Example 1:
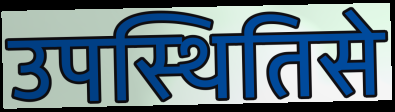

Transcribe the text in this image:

उपस्थितिसे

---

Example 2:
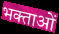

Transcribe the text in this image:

भक्ताओं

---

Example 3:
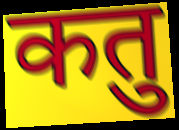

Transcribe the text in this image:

कतु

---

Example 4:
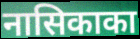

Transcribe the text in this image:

नासिकाका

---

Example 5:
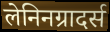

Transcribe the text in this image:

लेनिनग्रादर्स